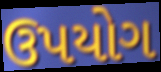
ઉપયોગ